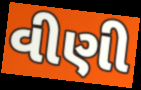
વીણી